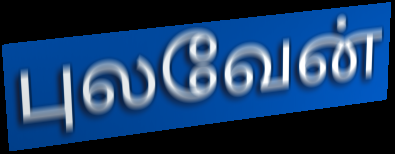
புலவேன்